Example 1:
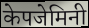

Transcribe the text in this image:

केपजेमिनी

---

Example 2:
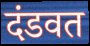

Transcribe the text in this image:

दंडवत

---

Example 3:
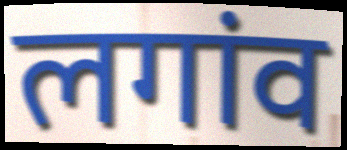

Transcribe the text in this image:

लगांव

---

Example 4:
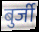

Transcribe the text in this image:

बुर्जी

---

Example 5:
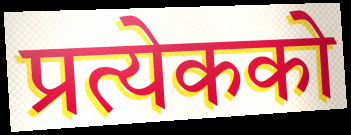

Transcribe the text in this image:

प्रत्येकको